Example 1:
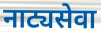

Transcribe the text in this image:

नाट्यसेवा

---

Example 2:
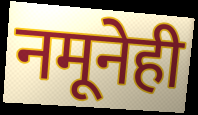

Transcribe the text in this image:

नमूनेही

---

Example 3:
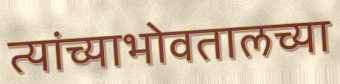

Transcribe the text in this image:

त्यांच्याभोवतालच्या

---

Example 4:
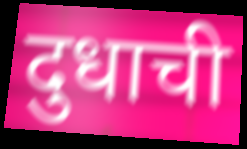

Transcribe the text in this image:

दुधाची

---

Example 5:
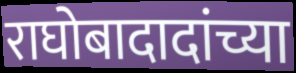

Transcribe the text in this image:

राघोबादादांच्या